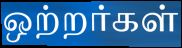
ஒற்றர்கள்